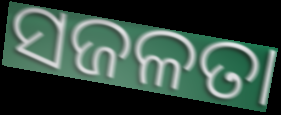
ସଜଳତା